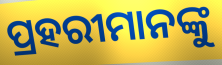
ପ୍ରହରୀମାନଙ୍କୁ